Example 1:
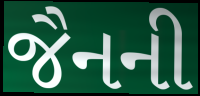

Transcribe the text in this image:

જૈનની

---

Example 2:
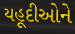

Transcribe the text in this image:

યહૂદીઓને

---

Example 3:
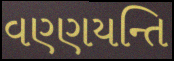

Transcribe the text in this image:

વણ્ણયન્તિ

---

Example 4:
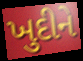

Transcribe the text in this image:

ખુદીને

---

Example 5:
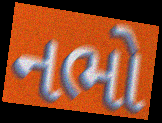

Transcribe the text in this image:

નભો